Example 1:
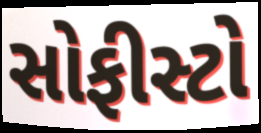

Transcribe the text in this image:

સોફીસ્ટો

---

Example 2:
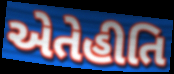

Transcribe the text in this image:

એતેહીતિ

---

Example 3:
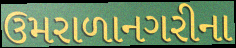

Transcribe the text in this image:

ઉમરાળાનગરીના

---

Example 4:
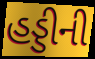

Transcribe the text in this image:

હડ્ડીની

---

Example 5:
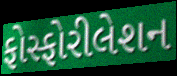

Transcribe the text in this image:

ફોસ્ફોરીલેશન